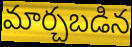
మార్చబడిన